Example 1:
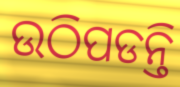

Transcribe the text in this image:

ଉଠିପଡନ୍ତି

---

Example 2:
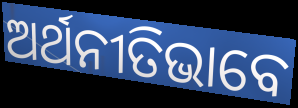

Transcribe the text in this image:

ଅର୍ଥନୀତିଭାବେ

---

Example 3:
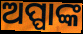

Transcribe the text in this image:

ଅପ୍ପାଙ୍କ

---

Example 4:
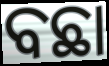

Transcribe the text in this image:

ବଛା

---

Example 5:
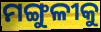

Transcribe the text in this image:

ମଙ୍ଗୁଳୀକୁ